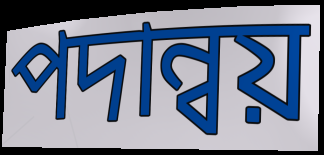
পদান্বয়